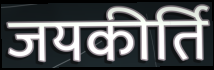
जयकीर्ति